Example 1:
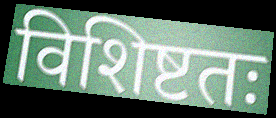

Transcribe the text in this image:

विशिष्टतः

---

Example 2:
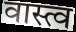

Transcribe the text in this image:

वास्त्व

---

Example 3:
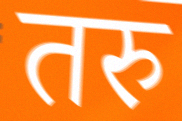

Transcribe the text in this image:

तरु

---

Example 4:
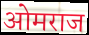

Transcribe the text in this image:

ओमराज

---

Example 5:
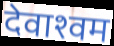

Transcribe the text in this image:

देवाश्वम